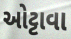
ઓટ્ટાવા